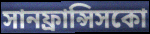
সানফ্রান্সিসকো